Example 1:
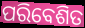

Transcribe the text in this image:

ପରିବେଶିତ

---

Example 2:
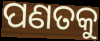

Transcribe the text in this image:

ପଣତକୁ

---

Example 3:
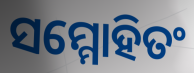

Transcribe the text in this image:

ସମ୍ମୋହିତଂ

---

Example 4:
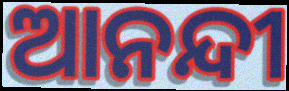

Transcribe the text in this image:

ଆନନ୍ଦୀ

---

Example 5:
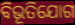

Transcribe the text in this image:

ବିଭୂତିଯୋଗ